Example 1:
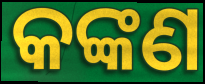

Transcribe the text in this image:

କଙ୍କଣ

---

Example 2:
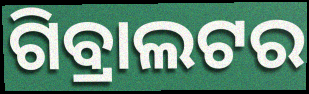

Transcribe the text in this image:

ଗିବ୍ରାଲଟର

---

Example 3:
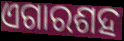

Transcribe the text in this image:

ଏଗାରଶହ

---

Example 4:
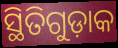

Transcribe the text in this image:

ସ୍ଥିତିଗୁଡ଼ାକ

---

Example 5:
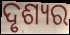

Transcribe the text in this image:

ଦୃଶ୍ୟର